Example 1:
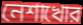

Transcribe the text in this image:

নেশাখোর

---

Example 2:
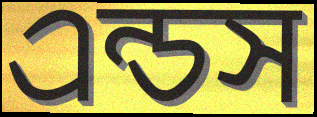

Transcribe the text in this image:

এন্ডস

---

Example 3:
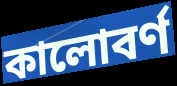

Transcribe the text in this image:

কালোবর্ণ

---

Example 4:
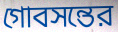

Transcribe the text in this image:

গোবসন্তের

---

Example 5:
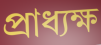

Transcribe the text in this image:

প্রাধ্যক্ষ